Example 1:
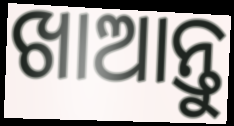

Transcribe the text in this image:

ଖାଆନ୍ତୁ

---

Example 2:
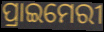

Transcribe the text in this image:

ପ୍ରାଇମେରୀ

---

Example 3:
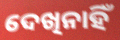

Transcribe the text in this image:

ଦେଖିନାହିଁ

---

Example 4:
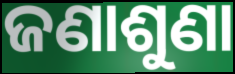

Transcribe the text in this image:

ଜଣାଶୁଣା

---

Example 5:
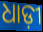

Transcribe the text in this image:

ଧାଡ଼ୀ